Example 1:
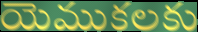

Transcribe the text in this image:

యెముకలకు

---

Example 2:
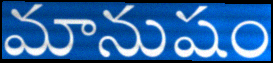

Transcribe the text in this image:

మానుషం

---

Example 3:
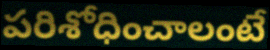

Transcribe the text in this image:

పరిశోధించాలంటే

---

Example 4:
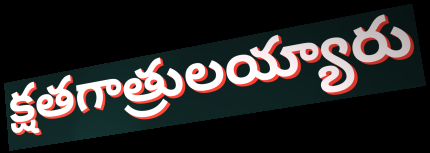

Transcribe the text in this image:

క్షతగాత్రులయ్యారు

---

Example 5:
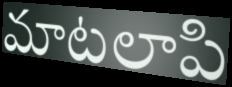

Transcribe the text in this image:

మాటలాపి